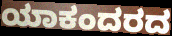
ಯಾಕಂದರದ